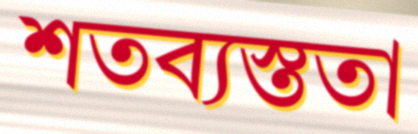
শতব্যস্ততা